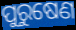
ପୁରୁଷେଣ